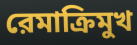
রেমাক্রিমুখ